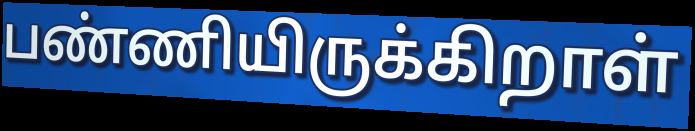
பண்ணியிருக்கிறாள்